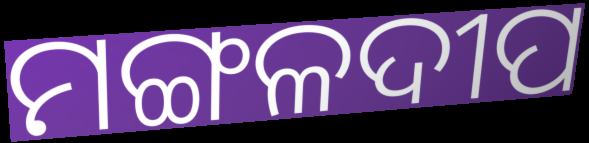
ମଙ୍ଗଳଦୀପ